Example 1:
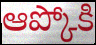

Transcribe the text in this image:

ఆప్కోకి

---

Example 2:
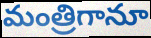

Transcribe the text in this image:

మంత్రిగానూ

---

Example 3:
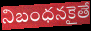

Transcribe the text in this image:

నిబంధనకైతే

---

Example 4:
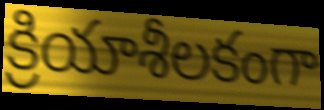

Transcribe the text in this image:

క్రియాశీలకంగా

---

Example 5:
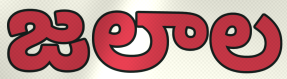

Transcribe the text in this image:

జలాల